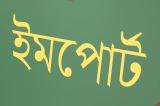
ইমপোর্ট